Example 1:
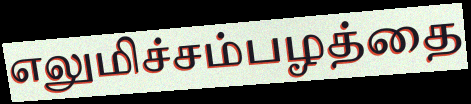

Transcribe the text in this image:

எலுமிச்சம்பழத்தை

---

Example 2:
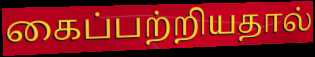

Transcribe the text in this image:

கைப்பற்றியதால்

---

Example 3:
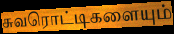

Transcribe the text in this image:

சுவரொட்டிகளையும்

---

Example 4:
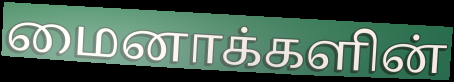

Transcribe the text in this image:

மைனாக்களின்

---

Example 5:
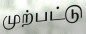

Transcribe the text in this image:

முற்பட்டு